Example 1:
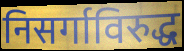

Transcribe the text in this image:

निसर्गाविरुद्ध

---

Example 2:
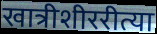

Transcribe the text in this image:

खात्रीशीररीत्या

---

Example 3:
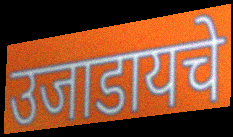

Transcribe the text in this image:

उजाडायचे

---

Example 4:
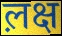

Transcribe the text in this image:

ल़क्ष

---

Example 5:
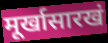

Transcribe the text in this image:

मूर्खासारखं